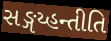
સઙ્ગય્હન્તીતિ